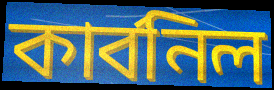
কার্বনিল